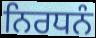
ਨਿਰਧਨੰ